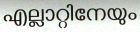
എല്ലാറ്റിനേയും